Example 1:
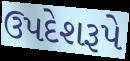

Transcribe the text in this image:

ઉપદેશરૂપે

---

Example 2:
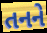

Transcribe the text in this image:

તનને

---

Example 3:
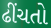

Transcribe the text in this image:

ઢીંચતો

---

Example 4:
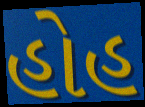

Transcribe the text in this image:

હોહ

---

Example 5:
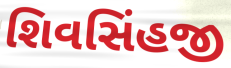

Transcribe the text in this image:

શિવસિંહજી